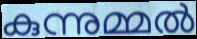
കുന്നുമ്മൽ